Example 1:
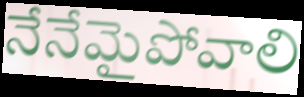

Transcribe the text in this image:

నేనేమైపోవాలి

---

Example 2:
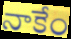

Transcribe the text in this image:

నాకేం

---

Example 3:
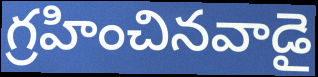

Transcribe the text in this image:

గ్రహించినవాడై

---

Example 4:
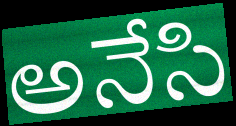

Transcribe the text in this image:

అనేసి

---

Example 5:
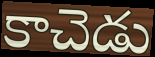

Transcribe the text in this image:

కాచెడు